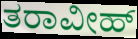
ತರಾವೀಹ್